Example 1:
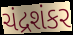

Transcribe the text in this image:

ચંદ્રશંકર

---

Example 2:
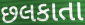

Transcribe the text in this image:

છલકાતા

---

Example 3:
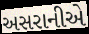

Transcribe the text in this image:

અસરાનીએ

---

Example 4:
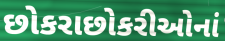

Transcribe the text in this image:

છોકરાછોકરીઓનાં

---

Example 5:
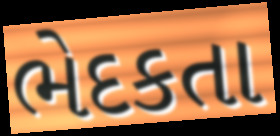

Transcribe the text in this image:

ભેદકતા